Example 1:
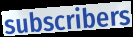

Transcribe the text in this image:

subscribers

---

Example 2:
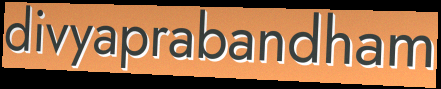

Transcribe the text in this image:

divyaprabandham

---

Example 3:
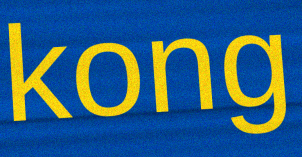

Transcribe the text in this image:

kong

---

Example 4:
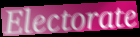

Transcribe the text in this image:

Electorate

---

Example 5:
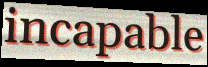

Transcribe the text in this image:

incapable